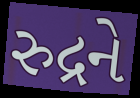
રુદ્રને